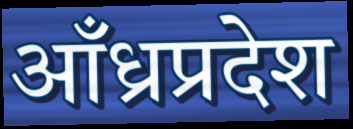
आँध्रप्रदेश